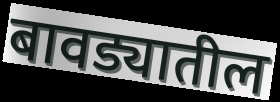
बावड्यातील